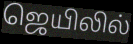
ஜெயிலில்